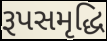
રૂપસમૃદ્ધિ